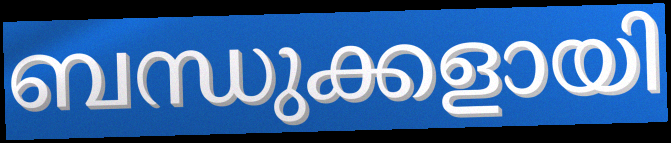
ബന്ധുക്കളായി